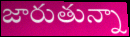
జారుతున్నా